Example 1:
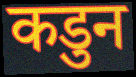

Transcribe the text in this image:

कडुन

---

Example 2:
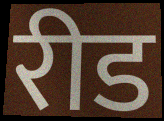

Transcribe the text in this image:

रीड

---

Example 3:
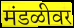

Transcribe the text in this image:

मंडळीवर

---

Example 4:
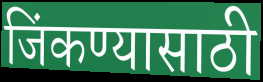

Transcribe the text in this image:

जिंकण्यासाठी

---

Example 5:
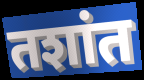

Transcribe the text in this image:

तशांत